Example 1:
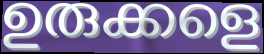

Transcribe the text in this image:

ഉരുക്കളെ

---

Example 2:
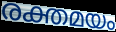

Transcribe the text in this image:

രക്തമയം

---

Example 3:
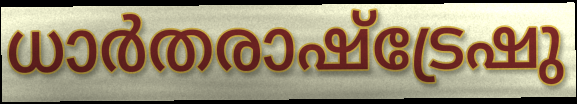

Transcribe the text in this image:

ധാർതരാഷ്ട്രേഷു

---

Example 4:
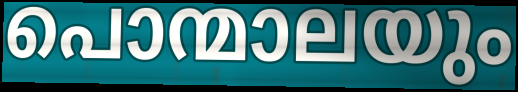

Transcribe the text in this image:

പൊന്മാലയും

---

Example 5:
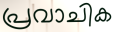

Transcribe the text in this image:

പ്രവാചിക